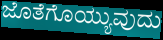
ಜೊತೆಗೊಯ್ಯುವುದು